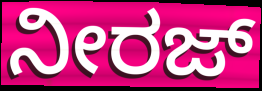
ನೀರಜ್